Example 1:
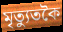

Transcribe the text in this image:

মৃত্যুতকৈ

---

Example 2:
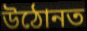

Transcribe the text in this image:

উঠোনত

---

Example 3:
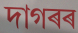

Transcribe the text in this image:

দাগৰৰ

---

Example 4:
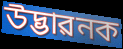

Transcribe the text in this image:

উদ্ভাৱনক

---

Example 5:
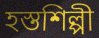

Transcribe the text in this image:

হস্তশিল্পী